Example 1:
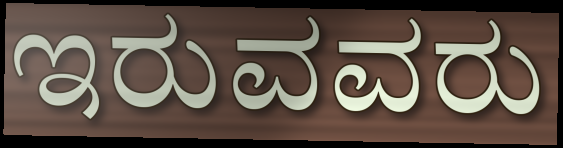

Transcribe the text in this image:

ಇರುವವರು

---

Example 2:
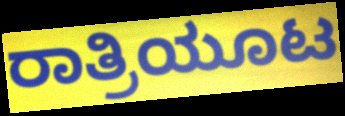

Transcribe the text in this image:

ರಾತ್ರಿಯೂಟ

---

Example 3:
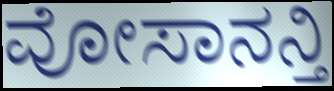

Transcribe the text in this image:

ವೋಸಾನನ್ತಿ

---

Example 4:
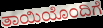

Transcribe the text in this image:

ತಾಯಿಯೊಂದಿಗೆ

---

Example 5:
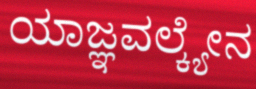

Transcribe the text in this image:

ಯಾಜ್ಞವಲ್ಕ್ಯೇನ